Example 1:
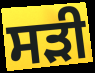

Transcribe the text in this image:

ਸੜੀ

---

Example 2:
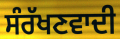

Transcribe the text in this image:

ਸੰਰੱਖਣਵਾਦੀ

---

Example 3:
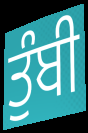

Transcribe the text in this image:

ਤੁੰਬੀ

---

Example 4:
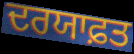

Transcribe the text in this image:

ਦਰਯਾਫ਼ਤ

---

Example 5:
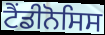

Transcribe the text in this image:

ਟੈਂਡੀਨੋਸਿਸ